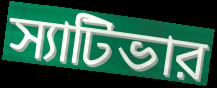
স্যাটিভার